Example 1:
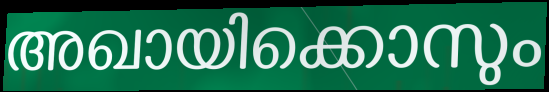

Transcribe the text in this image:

അഖായിക്കൊസും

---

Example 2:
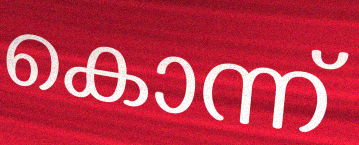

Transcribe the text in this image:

കൊന്ന്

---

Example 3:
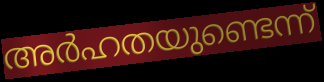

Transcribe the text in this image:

അർഹതയുണ്ടെന്ന്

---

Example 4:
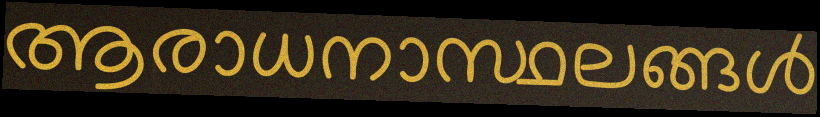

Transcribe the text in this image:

ആരാധനാസ്ഥലങ്ങൾ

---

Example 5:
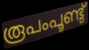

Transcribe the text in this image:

രൂപംപൂണ്ടു്